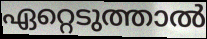
ഏറ്റെടുത്താൽ